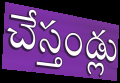
చేస్తండ్లు